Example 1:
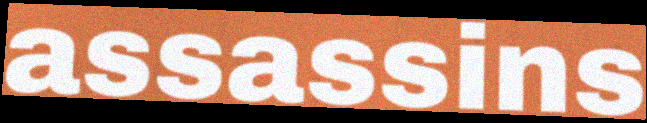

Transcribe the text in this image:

assassins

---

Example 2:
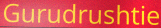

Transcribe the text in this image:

Gurudrushtie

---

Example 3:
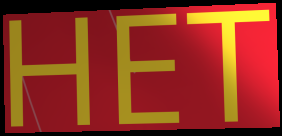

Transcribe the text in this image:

HET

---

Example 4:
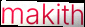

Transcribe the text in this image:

makith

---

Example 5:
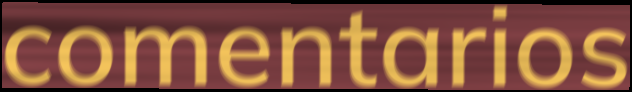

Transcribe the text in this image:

comentarios